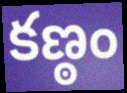
కణ్ఠం